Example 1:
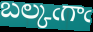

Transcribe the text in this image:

బల్కఁగాఁ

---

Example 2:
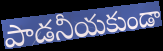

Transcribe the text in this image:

పాడనీయకుండా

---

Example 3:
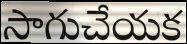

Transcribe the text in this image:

సాగుచేయక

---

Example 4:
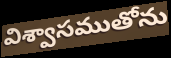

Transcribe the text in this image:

విశ్వాసముతోను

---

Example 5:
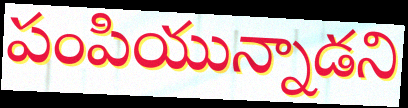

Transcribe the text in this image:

పంపియున్నాడని